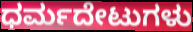
ಧರ್ಮದೇಟುಗಳು